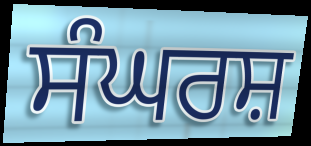
ਸੰਘਰਸ਼